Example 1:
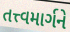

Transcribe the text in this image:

તત્ત્વમાર્ગને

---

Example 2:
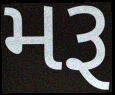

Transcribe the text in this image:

મરૂ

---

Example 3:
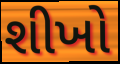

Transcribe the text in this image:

શીખો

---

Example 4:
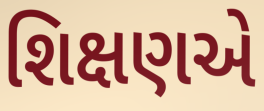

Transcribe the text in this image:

શિક્ષણએ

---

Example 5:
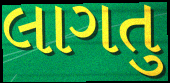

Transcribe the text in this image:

લાગતુ